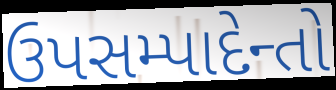
ઉપસમ્પાદેન્તો